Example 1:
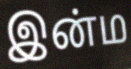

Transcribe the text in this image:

இன்ம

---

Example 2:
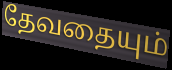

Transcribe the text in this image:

தேவதையும்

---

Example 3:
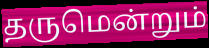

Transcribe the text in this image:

தருமென்றும்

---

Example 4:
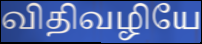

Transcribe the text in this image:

விதிவழியே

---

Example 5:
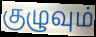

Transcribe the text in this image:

குழுவும்